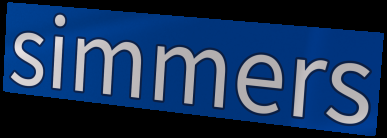
simmers